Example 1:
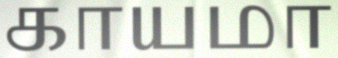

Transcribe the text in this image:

காயமா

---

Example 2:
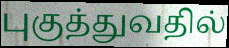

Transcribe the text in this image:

புகுத்துவதில்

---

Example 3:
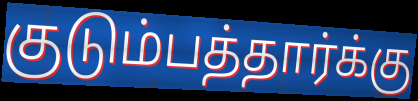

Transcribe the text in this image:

குடும்பத்தார்க்கு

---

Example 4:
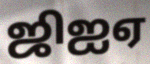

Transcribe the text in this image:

ஜிஐஏ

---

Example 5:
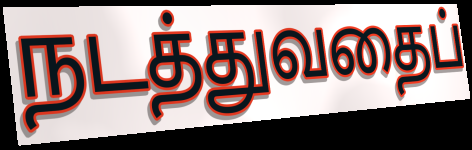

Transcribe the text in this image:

நடத்துவதைப்